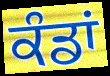
ਕੰਡਾਂ